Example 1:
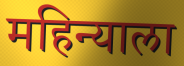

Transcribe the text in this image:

महिन्याला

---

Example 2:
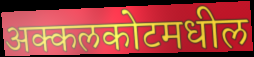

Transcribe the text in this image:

अक्कलकोटमधील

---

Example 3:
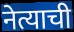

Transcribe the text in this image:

नेत्याची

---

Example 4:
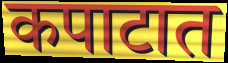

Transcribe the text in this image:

कपाटात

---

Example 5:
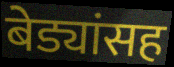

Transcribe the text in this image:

बेड्यांसह